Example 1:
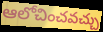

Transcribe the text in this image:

ఆలోచించవచ్చు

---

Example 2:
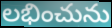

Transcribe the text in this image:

లభించును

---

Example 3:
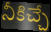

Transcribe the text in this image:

నీకిచ్చే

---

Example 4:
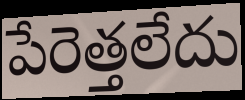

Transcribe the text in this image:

పేరెత్తలేదు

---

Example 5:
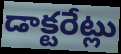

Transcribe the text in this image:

డాక్టరేట్లు